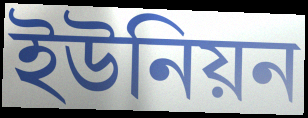
ইউনিয়ন